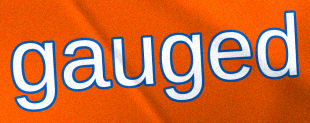
gauged